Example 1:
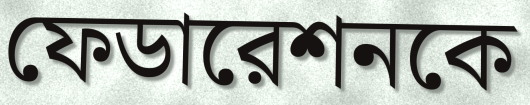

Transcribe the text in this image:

ফেডারেশনকে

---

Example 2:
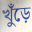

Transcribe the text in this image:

খুঁড়ে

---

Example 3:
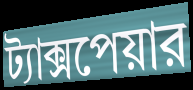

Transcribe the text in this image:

ট্যাক্সপেয়ার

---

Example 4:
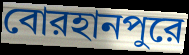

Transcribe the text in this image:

বোরহানপুরে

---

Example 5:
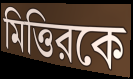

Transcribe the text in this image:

মিত্তিরকে